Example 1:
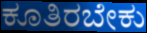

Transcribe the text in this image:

ಕೂತಿರಬೇಕು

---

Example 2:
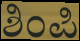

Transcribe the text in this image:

ಶಿಂಪಿ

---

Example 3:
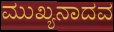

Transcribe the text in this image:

ಮುಖ್ಯನಾದವ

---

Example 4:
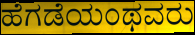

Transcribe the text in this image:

ಹೆಗಡೆಯಂಥವರು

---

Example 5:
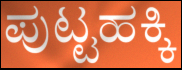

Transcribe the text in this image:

ಪುಟ್ಟಹಕ್ಕಿ